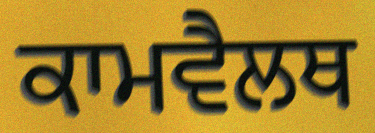
ਕਾਮਵੈਲਥ